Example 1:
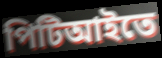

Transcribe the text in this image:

পিটিআইতে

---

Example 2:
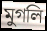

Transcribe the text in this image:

মুগলি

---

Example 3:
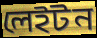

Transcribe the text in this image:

লেইটন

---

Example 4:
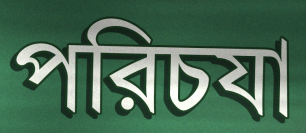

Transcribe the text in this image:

পরিচযা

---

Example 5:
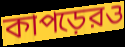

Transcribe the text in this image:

কাপড়েরও